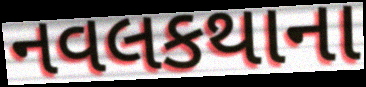
નવલકથાના